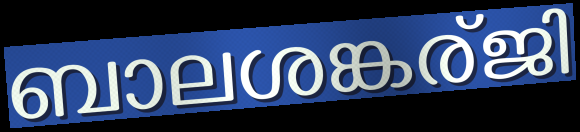
ബാലശങ്കര്ജി